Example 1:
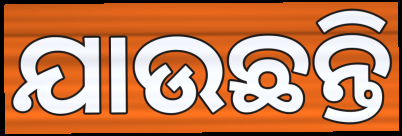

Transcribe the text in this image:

ଯାଉଛନ୍ତି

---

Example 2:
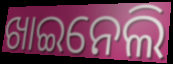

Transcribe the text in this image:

ଖାଇନେଲି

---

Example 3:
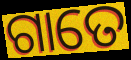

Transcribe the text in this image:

ଗାତେ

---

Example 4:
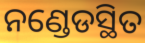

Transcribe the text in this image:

ନଣ୍ଡେଡସ୍ଥିତ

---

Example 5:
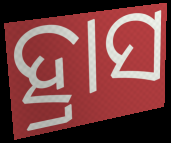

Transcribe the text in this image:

ହ୍ରାସ